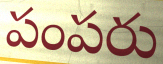
పంపరు